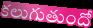
కలుగుతుందో